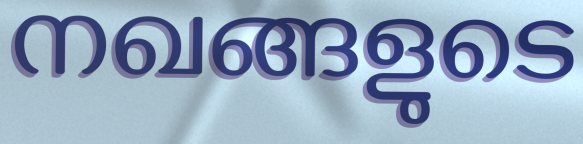
നഖങ്ങളുടെ